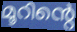
മൂറിന്റെ